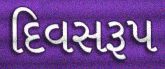
દિવસરૂપ